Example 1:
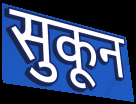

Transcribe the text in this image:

सुकून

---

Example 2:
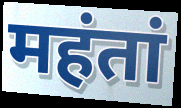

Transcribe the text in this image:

महंतां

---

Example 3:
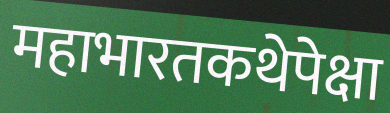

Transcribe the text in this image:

महाभारतकथेपेक्षा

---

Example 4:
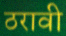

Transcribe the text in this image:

ठरावी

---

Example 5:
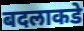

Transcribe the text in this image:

बदलाकडे